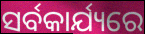
ସର୍ବକାର୍ଯ୍ୟରେ